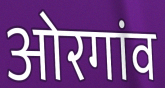
ओरगांव